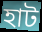
হাট